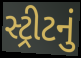
સ્ટ્રીટનું